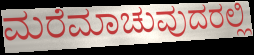
ಮರೆಮಾಚುವುದರಲ್ಲಿ